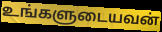
உங்களுடையவன்